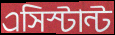
এসিস্টান্ট